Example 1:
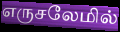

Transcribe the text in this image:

எருசலேமில்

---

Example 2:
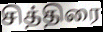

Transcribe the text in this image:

சித்திரை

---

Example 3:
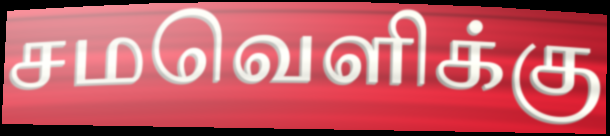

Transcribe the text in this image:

சமவெளிக்கு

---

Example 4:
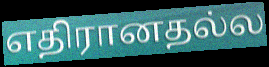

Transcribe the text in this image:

எதிரானதல்ல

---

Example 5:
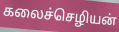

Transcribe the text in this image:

கலைச்செழியன்